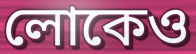
লোকেও